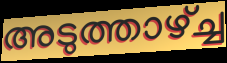
അടുത്താഴ്ച്ച